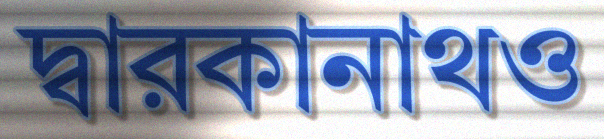
দ্বারকানাথও